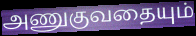
அணுகுவதையும்